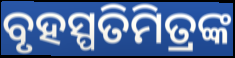
ବୃହସ୍ପତିମିତ୍ରଙ୍କ